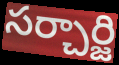
సర్చార్జి